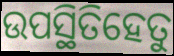
ଉପସ୍ଥିତିହେତୁ